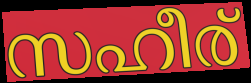
സഹീര്